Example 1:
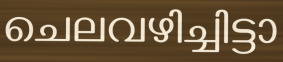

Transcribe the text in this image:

ചെലവഴിച്ചിട്ടാ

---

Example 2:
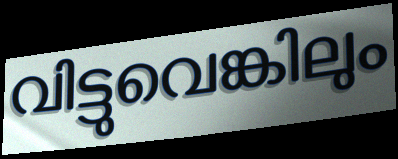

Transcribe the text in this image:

വിട്ടുവെങ്കിലും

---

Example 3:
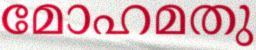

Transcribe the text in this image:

മോഹമതു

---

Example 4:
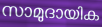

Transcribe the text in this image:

സാമുദായിക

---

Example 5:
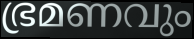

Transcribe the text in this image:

ഭ്രമണവും